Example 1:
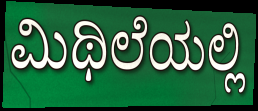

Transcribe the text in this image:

ಮಿಥಿಲೆಯಲ್ಲಿ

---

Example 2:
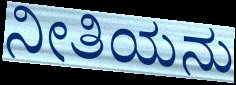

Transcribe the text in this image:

ನೀತಿಯನು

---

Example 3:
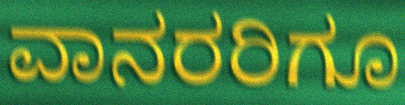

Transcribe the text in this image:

ವಾನರರಿಗೂ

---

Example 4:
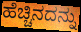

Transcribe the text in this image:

ಹೆಚ್ಚಿನದನ್ನು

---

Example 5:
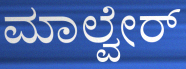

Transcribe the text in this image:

ಮಾಲ್ವೇರ್